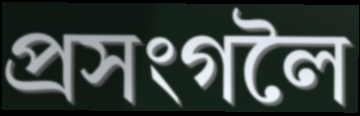
প্ৰসংগলৈ